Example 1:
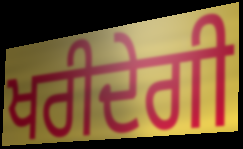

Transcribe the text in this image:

ਖਰੀਦੇਗੀ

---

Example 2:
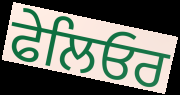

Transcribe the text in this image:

ਫੇਲਿਓਰ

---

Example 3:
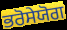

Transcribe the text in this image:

ਭਰੋਸੇਯੋਗ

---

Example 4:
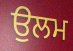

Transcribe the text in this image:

ਉਲਮ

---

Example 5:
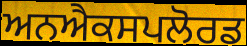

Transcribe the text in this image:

ਅਨਐਕਸਪਲੋਰਡ